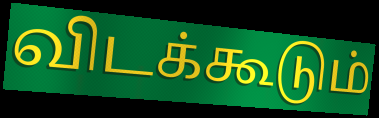
விடக்கூடும்